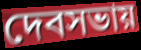
দেবসভায়